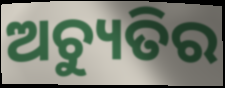
ଅଚ୍ୟୁତିର